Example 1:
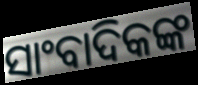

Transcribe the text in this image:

ସାଂବାଦିକଙ୍କ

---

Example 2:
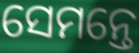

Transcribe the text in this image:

ସେମନ୍ତେ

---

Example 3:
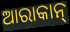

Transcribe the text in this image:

ଆରାକାନ୍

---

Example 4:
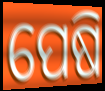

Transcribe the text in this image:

ପେଷି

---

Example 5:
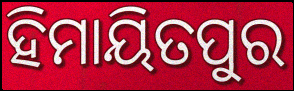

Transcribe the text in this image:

ହିମାୟିତପୁର